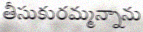
తీసుకురమ్మన్నాను